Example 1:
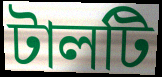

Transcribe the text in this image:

টালটি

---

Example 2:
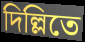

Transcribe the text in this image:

দিল্লিতে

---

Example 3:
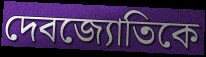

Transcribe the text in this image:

দেবজ্যোতিকে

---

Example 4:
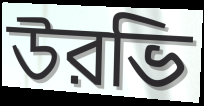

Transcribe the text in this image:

উরভি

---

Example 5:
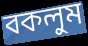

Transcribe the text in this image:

বকলুম